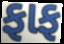
ફાફ